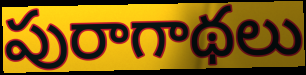
పురాగాథలు